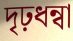
দৃঢ়ধন্বা